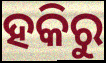
ହକିରୁ